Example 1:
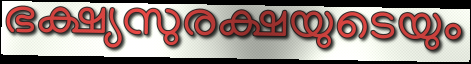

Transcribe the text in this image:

ഭക്ഷ്യസുരക്ഷയുടെയും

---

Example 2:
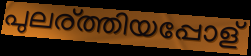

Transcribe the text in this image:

പുലര്ത്തിയപ്പോള്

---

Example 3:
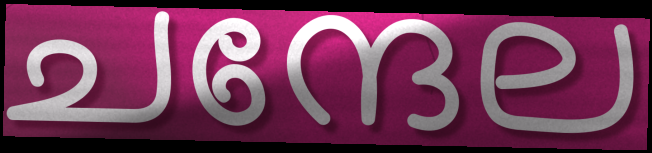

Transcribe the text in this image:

ചന്ദേല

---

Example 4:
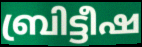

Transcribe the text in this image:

ബ്രിട്ടീഷ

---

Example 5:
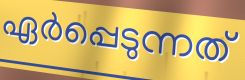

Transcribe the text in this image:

ഏർപ്പെടുന്നത്